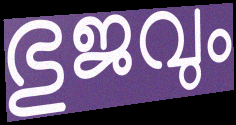
ഭുജവും